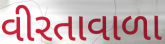
વીરતાવાળા